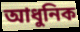
আধুনিক